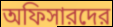
অফিসারদের